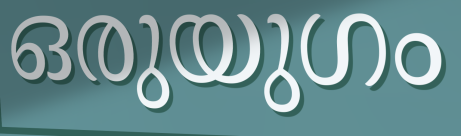
ഒരുയുഗം